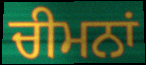
ਚੀਮਨਾਂ